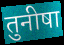
तुनीषा